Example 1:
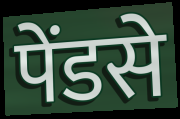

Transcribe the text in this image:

पेंडसे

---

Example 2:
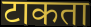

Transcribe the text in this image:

टाकता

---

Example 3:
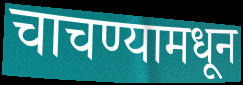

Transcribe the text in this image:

चाचण्यामधून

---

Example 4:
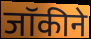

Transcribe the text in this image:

जॉकीने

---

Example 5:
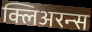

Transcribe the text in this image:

क्लिअरन्स